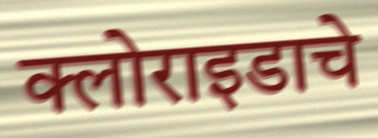
क्लोराइडाचे